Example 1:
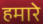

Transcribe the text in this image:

हमारे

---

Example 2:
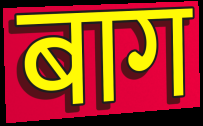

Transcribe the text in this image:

बाग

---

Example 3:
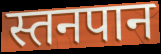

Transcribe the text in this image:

स्तनपान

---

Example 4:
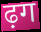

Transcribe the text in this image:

ढ़ग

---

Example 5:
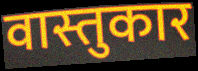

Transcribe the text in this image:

वास्तुकार